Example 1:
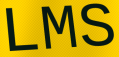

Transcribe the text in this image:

LMS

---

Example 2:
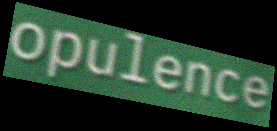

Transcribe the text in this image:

opulence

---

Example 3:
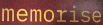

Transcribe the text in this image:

memorise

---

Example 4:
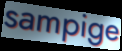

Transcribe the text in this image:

sampige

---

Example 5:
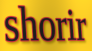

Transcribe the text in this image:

shorir